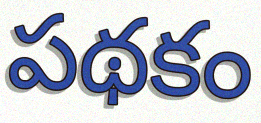
పథకం